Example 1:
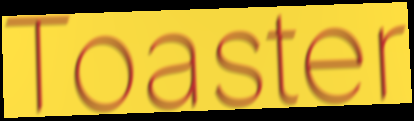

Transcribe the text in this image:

Toaster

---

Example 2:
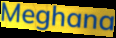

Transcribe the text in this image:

Meghana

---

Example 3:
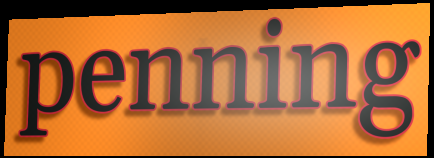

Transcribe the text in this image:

penning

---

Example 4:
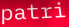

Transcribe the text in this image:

patri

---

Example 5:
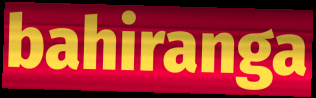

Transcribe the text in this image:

bahiranga